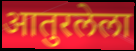
आतुरलेला